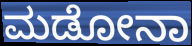
ಮಡೋನಾ